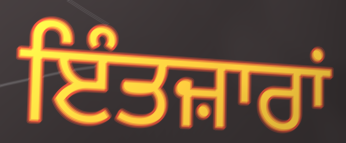
ਇੰਤਜ਼ਾਰਾਂ